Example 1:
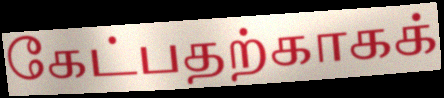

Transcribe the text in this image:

கேட்பதற்காகக்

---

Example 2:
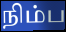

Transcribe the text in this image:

நிம்ப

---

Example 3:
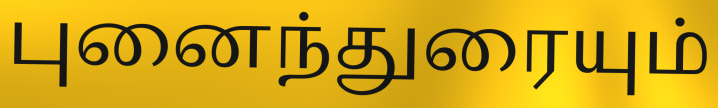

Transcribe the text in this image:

புனைந்துரையும்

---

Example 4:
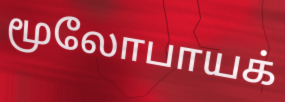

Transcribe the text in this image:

மூலோபாயக்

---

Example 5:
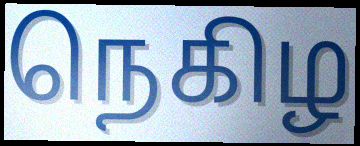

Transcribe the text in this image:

நெகிழ